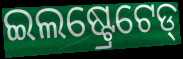
ଇଲଷ୍ଟ୍ରେଟେଡ୍